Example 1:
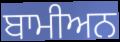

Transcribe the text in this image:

ਬਾਮੀਅਨ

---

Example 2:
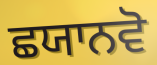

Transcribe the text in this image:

ਛਯਾਨਵੋ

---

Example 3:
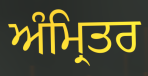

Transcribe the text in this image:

ਅੰਮ੍ਰਿਤਰ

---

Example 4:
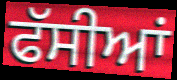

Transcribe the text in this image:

ਫੱਸੀਆਂ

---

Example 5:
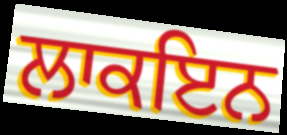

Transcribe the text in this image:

ਲਾਕਇਨ